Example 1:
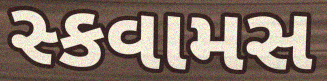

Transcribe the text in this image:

સ્કવામસ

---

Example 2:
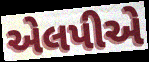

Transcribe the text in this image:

એલપીએ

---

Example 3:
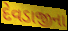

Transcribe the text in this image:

દેવડાજીના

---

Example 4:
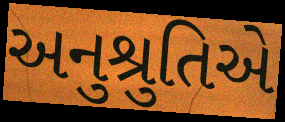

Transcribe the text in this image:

અનુશ્રુતિએ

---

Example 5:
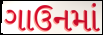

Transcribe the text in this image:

ગાઉનમાં